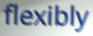
flexibly